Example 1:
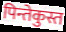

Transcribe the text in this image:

पिन्तेकुस्त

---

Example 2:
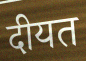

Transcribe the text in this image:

दीयत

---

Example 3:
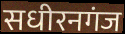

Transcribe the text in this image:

सधीरनगंज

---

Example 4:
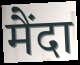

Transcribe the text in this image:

मैंदा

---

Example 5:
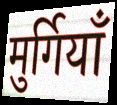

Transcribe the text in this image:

मुर्गियाँ